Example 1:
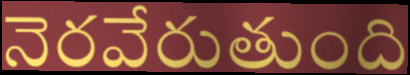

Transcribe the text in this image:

నెరవేరుతుంది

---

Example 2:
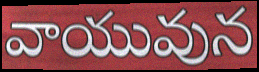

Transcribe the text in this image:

వాయువున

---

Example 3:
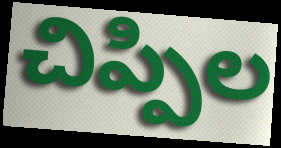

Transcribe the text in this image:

చిప్పిల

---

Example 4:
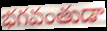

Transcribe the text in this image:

భగవంతుడా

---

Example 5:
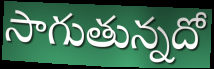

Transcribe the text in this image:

సాగుతున్నదో